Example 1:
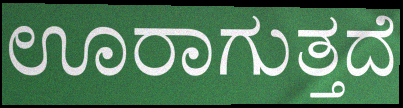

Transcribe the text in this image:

ಊರಾಗುತ್ತದೆ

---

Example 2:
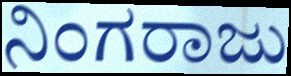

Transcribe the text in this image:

ನಿಂಗರಾಜು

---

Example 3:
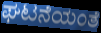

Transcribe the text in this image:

ಘಟನೆಯಂತೆ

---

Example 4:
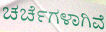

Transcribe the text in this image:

ಚರ್ಚೆಗಳಾಗಿವೆ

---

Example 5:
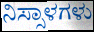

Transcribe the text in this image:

ನಿಸ್ಸಾಳಗಳು